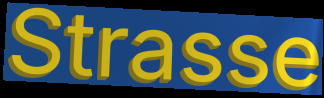
Strasse